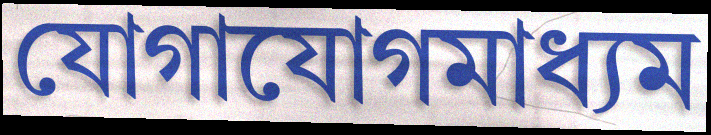
যোগাযোগমাধ্যম